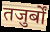
तजुर्बों